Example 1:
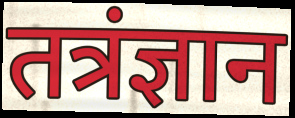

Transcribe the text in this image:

तत्रंज्ञान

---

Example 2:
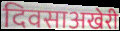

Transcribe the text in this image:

दिवसाअखेरी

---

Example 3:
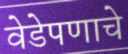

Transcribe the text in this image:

वेडेपणाचे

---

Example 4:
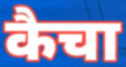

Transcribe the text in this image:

कैचा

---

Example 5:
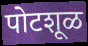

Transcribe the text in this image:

पोटशूळ